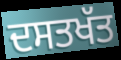
ਦਸਤਖੱਤ